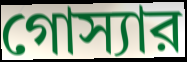
গোস্যার